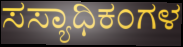
ಸಸ್ಯಾಧಿಕಂಗಳ